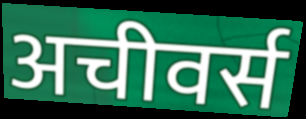
अचीवर्स